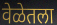
वेळेतला